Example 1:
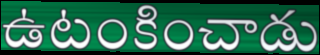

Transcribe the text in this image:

ఉటంకించాడు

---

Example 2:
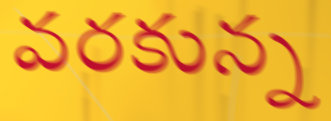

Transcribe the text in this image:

వరకున్న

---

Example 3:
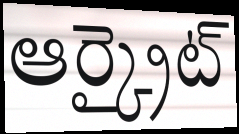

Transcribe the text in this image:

ఆర్క్రైట్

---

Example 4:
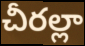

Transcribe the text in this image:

చీరల్లా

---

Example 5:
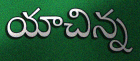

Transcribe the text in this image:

యాచిన్న